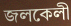
জলকেলী